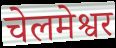
चेलमेश्वर